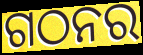
ଗଠନର